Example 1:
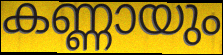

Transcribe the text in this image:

കണ്ണായും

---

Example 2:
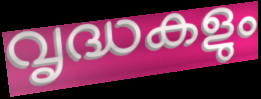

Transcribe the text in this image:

വൃദ്ധകളും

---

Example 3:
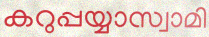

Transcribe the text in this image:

കറുപ്പയ്യാസ്വാമി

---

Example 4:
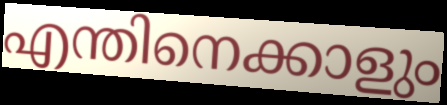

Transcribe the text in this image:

എന്തിനെക്കാളും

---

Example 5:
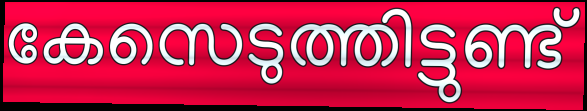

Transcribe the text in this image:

കേസെടുത്തിട്ടുണ്ട്